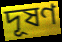
দূষণ